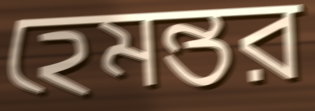
হেমন্তর